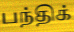
பந்திக்